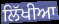
ਲਿੱਖੀਆ